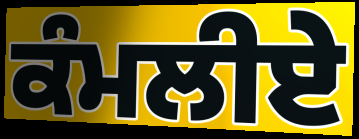
ਕੰਮਲੀਏ